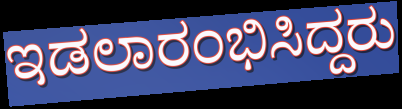
ಇಡಲಾರಂಭಿಸಿದ್ದರು